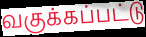
வகுக்கப்பட்டு